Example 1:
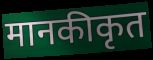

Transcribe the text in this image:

मानकीकृत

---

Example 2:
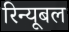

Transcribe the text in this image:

रिन्यूबल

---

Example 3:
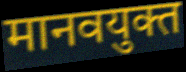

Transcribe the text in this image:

मानवयुक्त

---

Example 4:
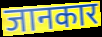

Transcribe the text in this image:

जानकार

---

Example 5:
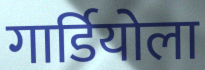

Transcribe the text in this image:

गार्डियोला